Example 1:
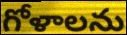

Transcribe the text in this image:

గోళాలను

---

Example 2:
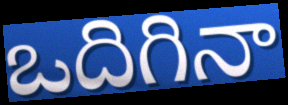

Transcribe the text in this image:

ఒదిగినా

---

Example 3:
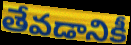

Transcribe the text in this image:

తేవడానికీ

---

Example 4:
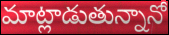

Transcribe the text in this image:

మాట్లాడుతున్నానో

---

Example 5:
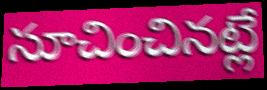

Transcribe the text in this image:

సూచించినట్లే